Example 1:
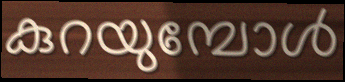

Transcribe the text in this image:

കുറയുമ്പോൾ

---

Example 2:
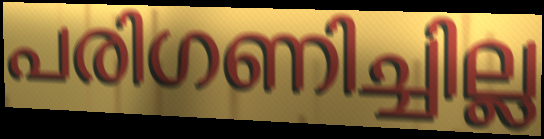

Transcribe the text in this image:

പരിഗണിച്ചില്ല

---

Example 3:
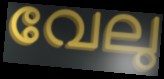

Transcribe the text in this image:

വേലു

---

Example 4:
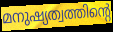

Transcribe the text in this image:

മനുഷ്യത്വത്തിന്റെ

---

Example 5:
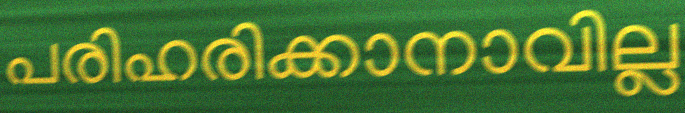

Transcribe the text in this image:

പരിഹരിക്കാനാവില്ല